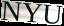
NYU